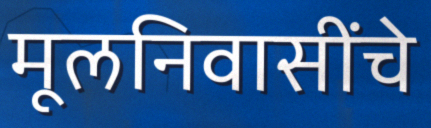
मूलनिवासींचे